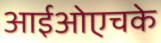
आईओएचके